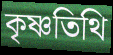
কৃষ্ণতিথি